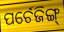
ପର୍ଚେଜିଙ୍ଗ୍